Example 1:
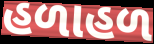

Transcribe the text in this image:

હળાહળ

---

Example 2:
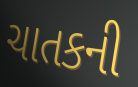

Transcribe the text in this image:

ચાતકની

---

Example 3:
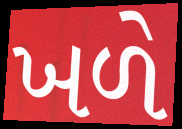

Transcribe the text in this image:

ખળે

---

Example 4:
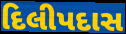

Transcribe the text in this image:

દિલીપદાસ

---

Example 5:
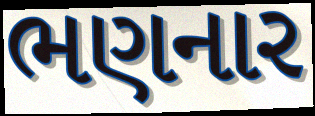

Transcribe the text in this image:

ભણનાર